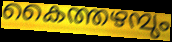
കൈത്തഴമ്പും